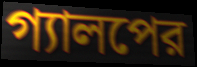
গ্যালপের